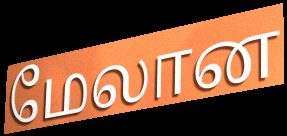
மேலான